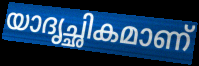
യാദൃച്ഛികമാണ്